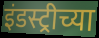
इंडस्ट्रीच्या